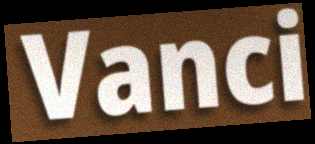
Vanci